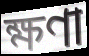
ক্ষণা